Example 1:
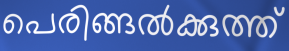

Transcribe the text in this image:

പെരിങ്ങൽക്കുത്ത്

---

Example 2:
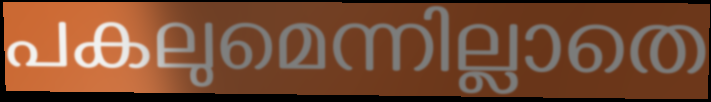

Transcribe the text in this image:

പകലുമെന്നില്ലാതെ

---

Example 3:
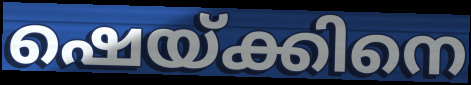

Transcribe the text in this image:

ഷെയ്ക്കിനെ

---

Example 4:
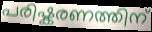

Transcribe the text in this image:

പരിഷ്കരണത്തിന്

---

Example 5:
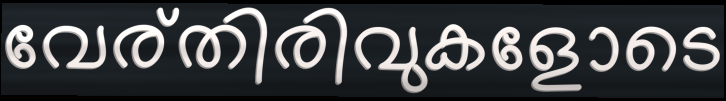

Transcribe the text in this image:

വേര്തിരിവുകളോടെ